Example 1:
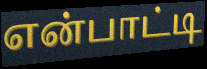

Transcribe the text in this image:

என்பாட்டி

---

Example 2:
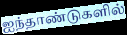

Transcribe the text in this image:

ஐந்தாண்டுகளில்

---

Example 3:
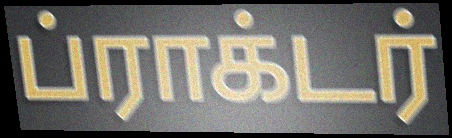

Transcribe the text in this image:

ப்ராக்டர்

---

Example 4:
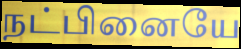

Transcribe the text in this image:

நட்பினையே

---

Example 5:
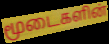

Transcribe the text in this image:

மூடைகளின்